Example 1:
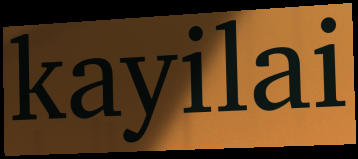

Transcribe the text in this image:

kayilai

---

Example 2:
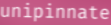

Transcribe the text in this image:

unipinnate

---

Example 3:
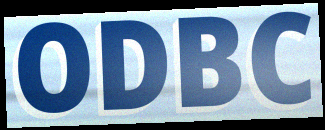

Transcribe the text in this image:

ODBC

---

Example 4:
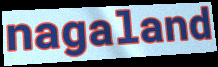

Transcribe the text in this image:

nagaland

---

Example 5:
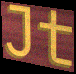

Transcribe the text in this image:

Jt